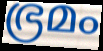
ഭ്രമം